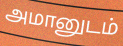
அமானுடம்